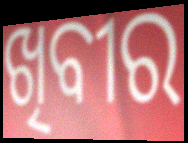
ଖିବୀର